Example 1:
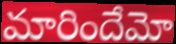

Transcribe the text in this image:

మారిందేమో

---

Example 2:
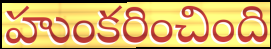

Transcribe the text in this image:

హుంకరించింది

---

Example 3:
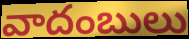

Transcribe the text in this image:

వాదంబులు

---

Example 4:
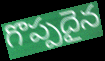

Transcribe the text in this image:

గొప్పదైన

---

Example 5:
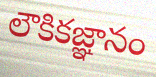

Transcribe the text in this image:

లౌకికజ్ఞానం